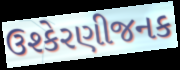
ઉશ્કેરણીજનક